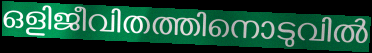
ഒളിജീവിതത്തിനൊടുവിൽ